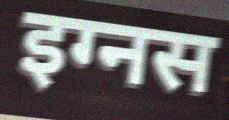
इग्नस